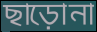
ছাড়োনা